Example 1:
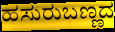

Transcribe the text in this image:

ಹಸುರುಬಣ್ಣದ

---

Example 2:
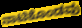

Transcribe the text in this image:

ನಾಟಿಕೊಂಡವು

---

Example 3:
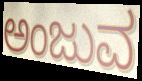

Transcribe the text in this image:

ಅಂಜುವ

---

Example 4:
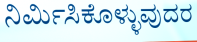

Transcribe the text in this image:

ನಿರ್ಮಿಸಿಕೊಳ್ಳುವುದರ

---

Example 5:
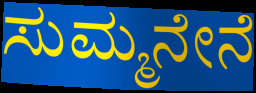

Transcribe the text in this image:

ಸುಮ್ಮನೇನೆ